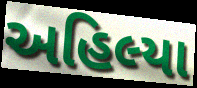
અહિલ્યા